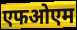
एफओएम